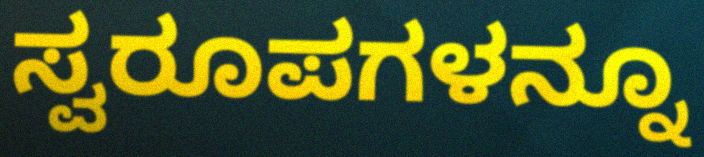
ಸ್ವರೂಪಗಳನ್ನೂ